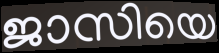
ജാസിയെ